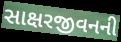
સાક્ષરજીવનની